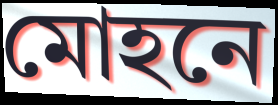
মোহনে